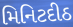
મિનિટદીઠ